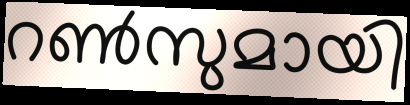
റൺസുമായി